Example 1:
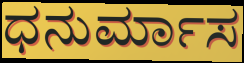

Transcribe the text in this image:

ಧನುರ್ಮಾಸ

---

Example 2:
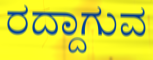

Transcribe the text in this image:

ರದ್ದಾಗುವ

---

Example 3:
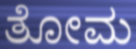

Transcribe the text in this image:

ತೋಮ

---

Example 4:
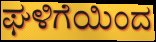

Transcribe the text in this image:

ಘಳಿಗೆಯಿಂದ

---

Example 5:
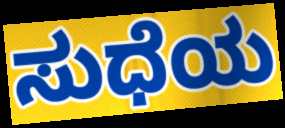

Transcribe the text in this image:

ಸುಧೆಯ